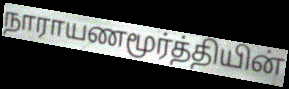
நாராயணமூர்த்தியின்